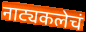
नाट्यकलेचं